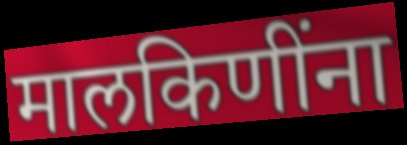
मालकिणींना